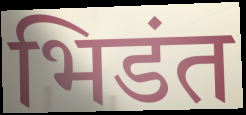
भिडंत